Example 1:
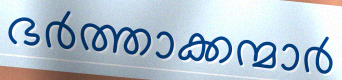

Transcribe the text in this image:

ഭർത്താക്കന്മാർ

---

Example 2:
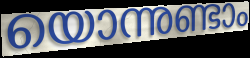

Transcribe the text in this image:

യൊന്നുണ്ടാം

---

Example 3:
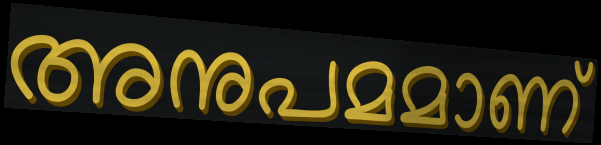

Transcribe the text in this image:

അനുപമമാണ്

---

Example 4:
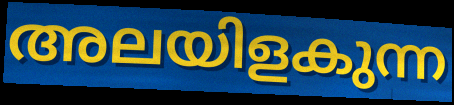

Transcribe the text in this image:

അലയിളകുന്ന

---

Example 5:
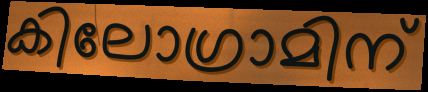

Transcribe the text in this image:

കിലോഗ്രാമിന്